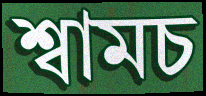
শ্বামচ